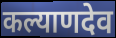
कल्याणदेव